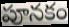
పూనకం